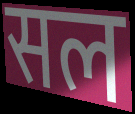
सल